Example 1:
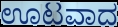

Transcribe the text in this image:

ಊಟವಾದ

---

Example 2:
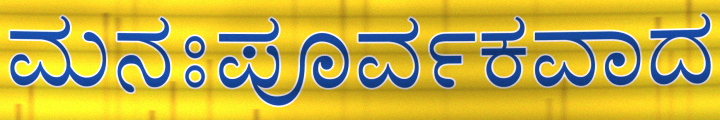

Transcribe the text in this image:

ಮನಃಪೂರ್ವಕವಾದ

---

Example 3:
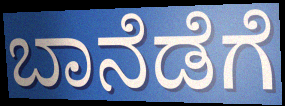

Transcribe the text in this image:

ಬಾನೆಡೆಗೆ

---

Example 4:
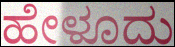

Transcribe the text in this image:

ಹೇಳೂದು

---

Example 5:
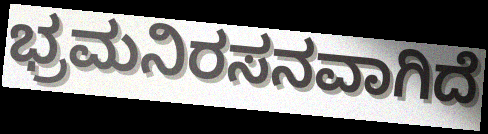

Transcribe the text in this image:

ಭ್ರಮನಿರಸನವಾಗಿದೆ